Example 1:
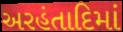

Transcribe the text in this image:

અરહંતાદિમાં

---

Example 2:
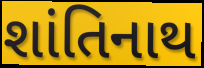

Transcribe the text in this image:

શાંતિનાથ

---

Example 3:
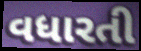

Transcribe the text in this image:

વધારતી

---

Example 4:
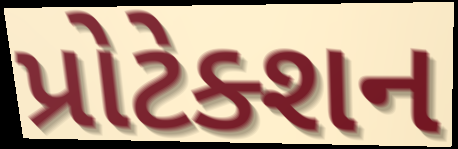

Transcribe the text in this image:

પ્રોટેક્શન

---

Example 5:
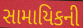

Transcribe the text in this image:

સામાયિકની